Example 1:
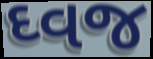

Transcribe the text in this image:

ઘ્વજ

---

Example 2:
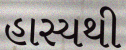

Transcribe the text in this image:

હાસ્યથી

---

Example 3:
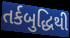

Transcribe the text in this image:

તર્કબુદ્ધિથી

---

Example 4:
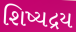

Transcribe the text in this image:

શિષ્યદ્રય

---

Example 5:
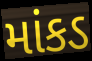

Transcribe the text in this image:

માંકડ